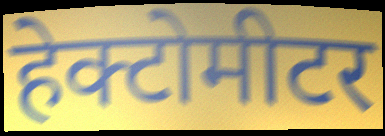
हेक्टोमीटर